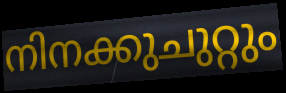
നിനക്കുചുറ്റും